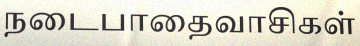
நடைபாதைவாசிகள்